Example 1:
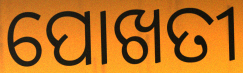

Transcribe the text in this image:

ପୋଖତୀ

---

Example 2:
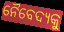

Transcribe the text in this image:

ନୈବେଦ୍ୟକୁ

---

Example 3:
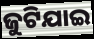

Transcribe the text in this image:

ଜୁଟିଯାଇ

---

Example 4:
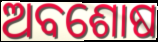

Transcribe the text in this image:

ଅବଶୋଷ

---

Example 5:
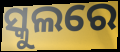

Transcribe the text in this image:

ସ୍କୁଲରେ